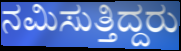
ನಮಿಸುತ್ತಿದ್ದರು